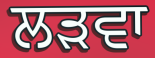
ਲੜਵਾ